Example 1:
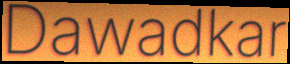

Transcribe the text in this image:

Dawadkar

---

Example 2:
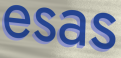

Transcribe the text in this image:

esas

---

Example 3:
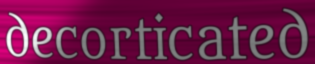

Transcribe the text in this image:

decorticated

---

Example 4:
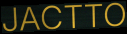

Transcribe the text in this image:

JACTTO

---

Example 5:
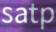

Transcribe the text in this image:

satp